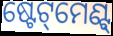
ଷ୍ଟେଟ୍‌ମେଣ୍ଟ୍